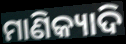
ମାଣିକ୍ୟାଦି